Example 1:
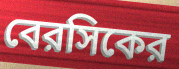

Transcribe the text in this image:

বেরসিকের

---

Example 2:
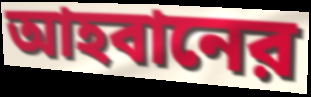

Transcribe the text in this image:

আহবানের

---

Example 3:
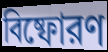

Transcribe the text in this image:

বিষ্ফোরণ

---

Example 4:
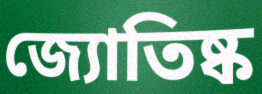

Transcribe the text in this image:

জ্যোতিষ্ক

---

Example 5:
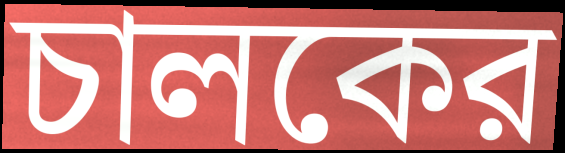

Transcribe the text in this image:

চালকের